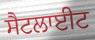
ਸੈਟਲਾਈਟ